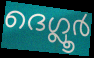
ദെഗ്ലൂർ